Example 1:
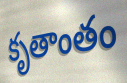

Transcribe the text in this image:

కృతాంతం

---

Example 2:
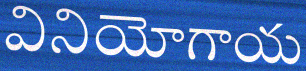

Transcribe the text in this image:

వినియోగాయ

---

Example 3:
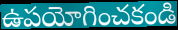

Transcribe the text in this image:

ఉపయోగించకండి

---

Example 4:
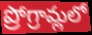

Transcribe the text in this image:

ప్రోగ్రామ్లలో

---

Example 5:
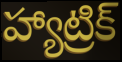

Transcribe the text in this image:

హ్యాట్రిక్